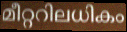
മീറ്ററിലധികം